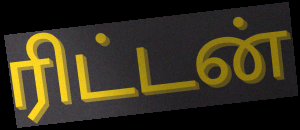
ரிட்டன்